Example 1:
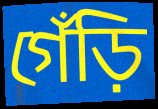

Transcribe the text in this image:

গেঁড়ি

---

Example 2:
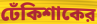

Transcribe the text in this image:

ঢেঁকিশাকের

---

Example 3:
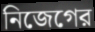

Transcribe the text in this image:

নিজেগের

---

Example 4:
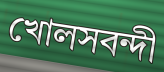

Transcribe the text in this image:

খোলসবন্দী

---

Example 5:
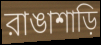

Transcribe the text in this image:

রাঙাশাড়ি